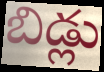
బిడ్లు